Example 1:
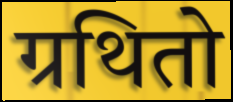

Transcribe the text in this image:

ग्रथितो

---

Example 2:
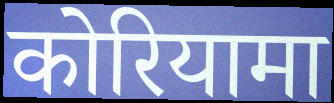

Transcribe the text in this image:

कोरियामा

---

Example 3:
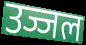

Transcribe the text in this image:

उज्जल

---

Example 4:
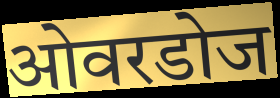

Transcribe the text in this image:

ओवरडोज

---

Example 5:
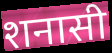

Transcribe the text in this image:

शनासी